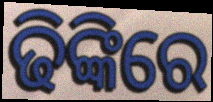
ଢିଙ୍କିରେ